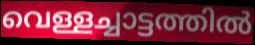
വെള്ളച്ചാട്ടത്തിൽ